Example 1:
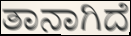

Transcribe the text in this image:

ತಾನಾಗಿದೆ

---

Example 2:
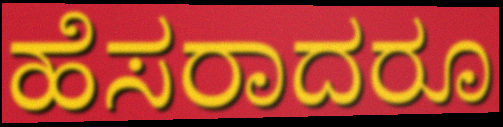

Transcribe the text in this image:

ಹೆಸರಾದರೂ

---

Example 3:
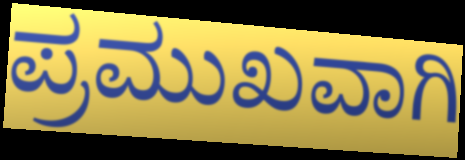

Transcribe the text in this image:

ಪ್ರಮುಖವಾಗಿ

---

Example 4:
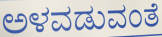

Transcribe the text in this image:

ಅಳವಡುವಂತೆ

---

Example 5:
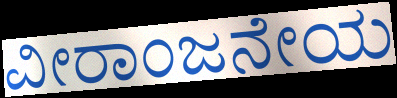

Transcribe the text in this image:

ವೀರಾಂಜನೇಯ